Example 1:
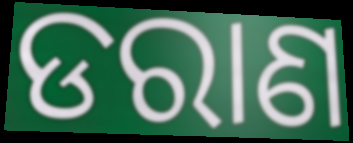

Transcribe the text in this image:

ଡରାଣ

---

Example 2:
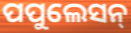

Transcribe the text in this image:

ପପୁଲେସନ୍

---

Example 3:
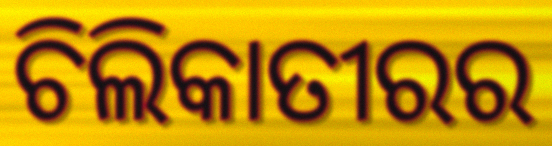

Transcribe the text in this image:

ଚିଲିକାତୀରର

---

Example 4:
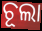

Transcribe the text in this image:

ଚୂଲା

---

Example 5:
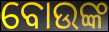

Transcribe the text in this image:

ବୋଉଙ୍କ